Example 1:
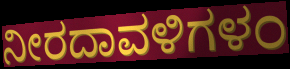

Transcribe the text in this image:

ನೀರದಾವಳಿಗಳಂ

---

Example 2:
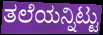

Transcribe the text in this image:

ತಲೆಯನ್ನಿಟ್ಟು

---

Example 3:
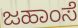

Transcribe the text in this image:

ಜಹಾಂಸೆ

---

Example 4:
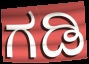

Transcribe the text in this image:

ಗಡಿ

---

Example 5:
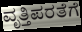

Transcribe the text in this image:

ವೃತ್ತಿಪರತೆಗೆ